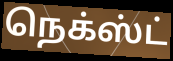
நெக்ஸ்ட்